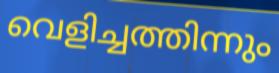
വെളിച്ചത്തിന്നും